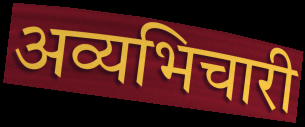
अव्यभिचारी